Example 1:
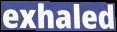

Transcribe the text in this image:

exhaled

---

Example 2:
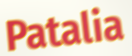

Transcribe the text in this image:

Patalia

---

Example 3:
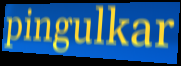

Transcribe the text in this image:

pingulkar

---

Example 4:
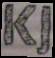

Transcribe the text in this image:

KJ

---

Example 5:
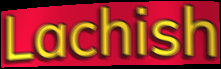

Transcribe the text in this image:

Lachish